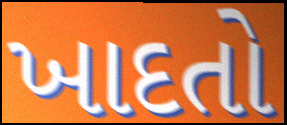
ખાદતો